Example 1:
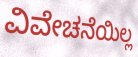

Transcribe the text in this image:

ವಿವೇಚನೆಯಿಲ್ಲ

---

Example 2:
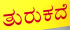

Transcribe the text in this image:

ತುರುಕದೆ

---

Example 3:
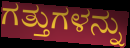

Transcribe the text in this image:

ಗತ್ತುಗಳನ್ನು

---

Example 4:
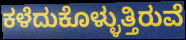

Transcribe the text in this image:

ಕಳೆದುಕೊಳ್ಳುತ್ತಿರುವೆ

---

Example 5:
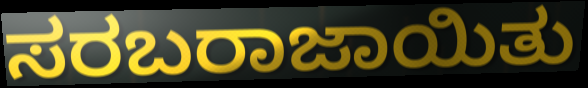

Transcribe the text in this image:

ಸರಬರಾಜಾಯಿತು